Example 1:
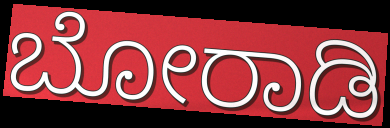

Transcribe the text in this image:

ಬೋರಾಡಿ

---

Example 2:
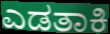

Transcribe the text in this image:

ಎಡತಾಕಿ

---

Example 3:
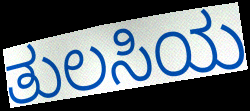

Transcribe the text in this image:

ತುಲಸಿಯ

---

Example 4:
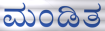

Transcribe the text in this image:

ಮಂಡಿತ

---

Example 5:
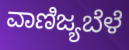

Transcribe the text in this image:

ವಾಣಿಜ್ಯಬೆಳೆ